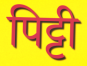
पिट्टी